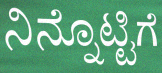
ನಿನ್ನೊಟ್ಟಿಗೆ